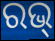
ରଭ୍